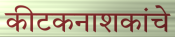
कीटकनाशकांचे